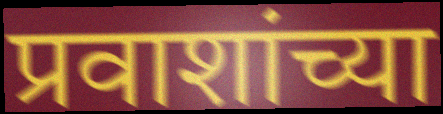
प्रवाशांच्या